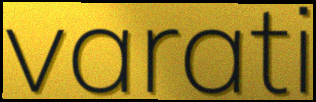
varati